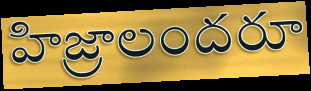
హిజ్రాలందరూ